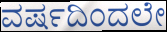
ವರ್ಷದಿಂದಲೇ